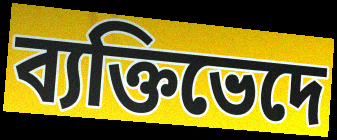
ব্যক্তিভেদে